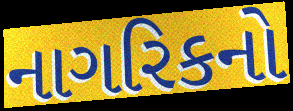
નાગરિકનો